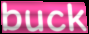
buck